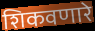
शिकवणारे